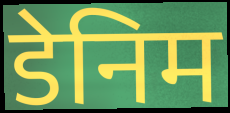
डेनिम